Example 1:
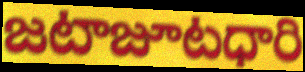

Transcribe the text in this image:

జటాజూటధారి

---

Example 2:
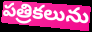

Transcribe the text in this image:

పత్రికలును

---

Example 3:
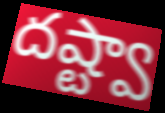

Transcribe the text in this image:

దష్ట్వా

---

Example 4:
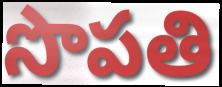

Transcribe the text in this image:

సొపతి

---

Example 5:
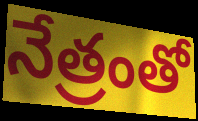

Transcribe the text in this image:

నేత్రంతో